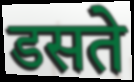
डसते